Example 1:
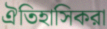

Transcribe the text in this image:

ঐতিহাসিকরা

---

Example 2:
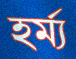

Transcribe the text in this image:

হর্ম্য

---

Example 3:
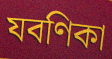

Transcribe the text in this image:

যবণিকা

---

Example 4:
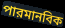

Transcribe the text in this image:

পারমানবিক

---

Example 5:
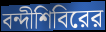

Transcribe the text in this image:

বন্দীশিবিরের